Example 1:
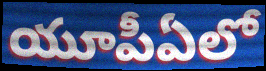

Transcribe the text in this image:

యూపీఏలో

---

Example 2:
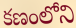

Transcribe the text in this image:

కణంలోని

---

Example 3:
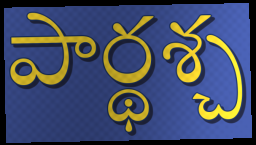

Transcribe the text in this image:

పార్థశ్చ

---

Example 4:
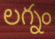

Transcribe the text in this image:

లగ్నం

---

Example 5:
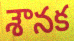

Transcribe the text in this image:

శౌనక